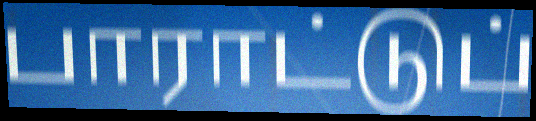
பாராட்டுப்